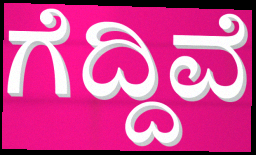
ಗೆದ್ದಿವೆ